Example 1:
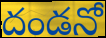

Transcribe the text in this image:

దండనో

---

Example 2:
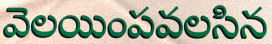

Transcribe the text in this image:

వెలయింపవలసిన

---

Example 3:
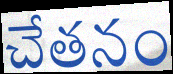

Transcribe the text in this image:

చేతనం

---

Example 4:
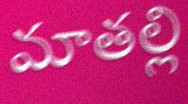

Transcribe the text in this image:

మాతల్లి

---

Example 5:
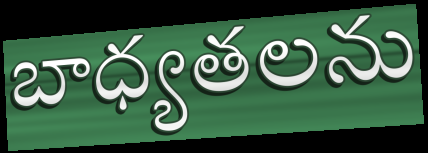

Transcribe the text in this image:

బాధ్యతలను